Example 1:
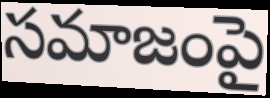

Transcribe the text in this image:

సమాజంపై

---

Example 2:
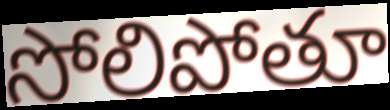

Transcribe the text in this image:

సోలిపోతూ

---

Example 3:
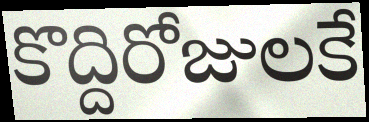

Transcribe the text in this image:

కొద్దిరోజులకే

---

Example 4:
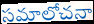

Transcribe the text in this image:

సమాలోచనా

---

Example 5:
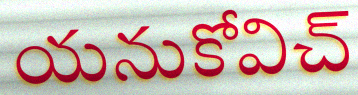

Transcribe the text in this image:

యనుకోవిచ్